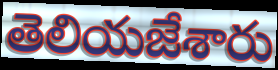
తెలియజేశారు